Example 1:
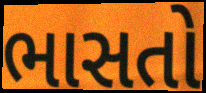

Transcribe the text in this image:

ભાસતો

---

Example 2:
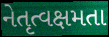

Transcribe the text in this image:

નેતૃત્વક્ષમતા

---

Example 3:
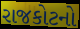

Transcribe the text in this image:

રાજકોટનો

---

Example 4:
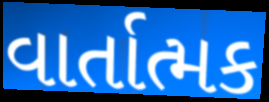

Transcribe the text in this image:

વાર્તાત્મક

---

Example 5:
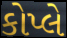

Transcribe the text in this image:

કોપ્લે